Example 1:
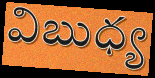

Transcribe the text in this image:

విబుధ్య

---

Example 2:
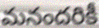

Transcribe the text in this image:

మనందరికీ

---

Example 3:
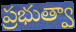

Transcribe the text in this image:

ప్రభుత్వా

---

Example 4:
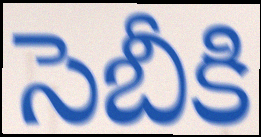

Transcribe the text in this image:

సెబీకి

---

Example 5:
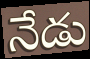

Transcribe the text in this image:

నేడు